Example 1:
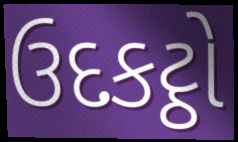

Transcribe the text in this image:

ઉદકટ્ઠો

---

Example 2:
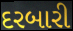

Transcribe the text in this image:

દરબારી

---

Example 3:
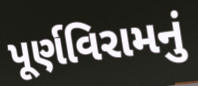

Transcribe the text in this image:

પૂર્ણવિરામનું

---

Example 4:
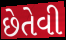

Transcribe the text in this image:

છેતેવી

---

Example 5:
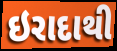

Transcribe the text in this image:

ઇરાદાથી